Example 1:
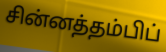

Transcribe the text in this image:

சின்னத்தம்பிப்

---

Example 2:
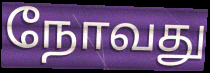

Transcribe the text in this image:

நோவது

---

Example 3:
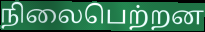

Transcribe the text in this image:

நிலைபெற்றன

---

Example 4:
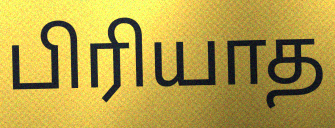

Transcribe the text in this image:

பிரியாத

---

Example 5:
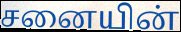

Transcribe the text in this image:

சனையின்